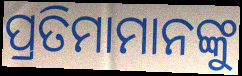
ପ୍ରତିମାମାନଙ୍କୁ